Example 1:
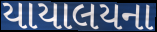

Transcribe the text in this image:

યાયાલયના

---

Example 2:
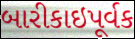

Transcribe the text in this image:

બારીકાઇપૂર્વક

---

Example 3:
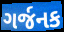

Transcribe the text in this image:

ગર્જનક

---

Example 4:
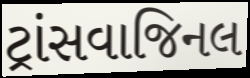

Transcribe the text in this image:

ટ્રાંસવાજિનલ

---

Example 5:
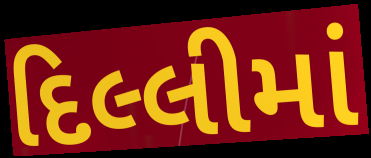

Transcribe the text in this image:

દિલ્લીમાં